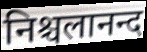
निश्चलानन्द